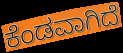
ಕೆಂಡವಾಗಿದೆ